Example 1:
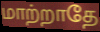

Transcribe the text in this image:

மாற்றாதே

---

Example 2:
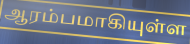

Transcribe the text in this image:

ஆரம்பமாகியுள்ள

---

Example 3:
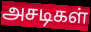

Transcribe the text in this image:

அசடிகள்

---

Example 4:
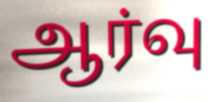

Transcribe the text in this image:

ஆர்வு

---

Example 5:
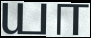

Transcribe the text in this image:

யா